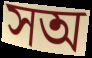
সঅ